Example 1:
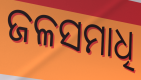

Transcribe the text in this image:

ଜଳସମାଧି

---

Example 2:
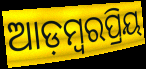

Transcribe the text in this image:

ଆଡ଼ମ୍ବରପ୍ରିୟ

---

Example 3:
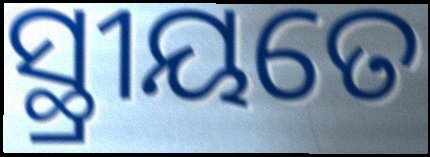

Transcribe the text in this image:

ସ୍ଥ୍ରୀୟତେ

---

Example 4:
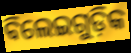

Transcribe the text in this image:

ବିଲେଇଗୁଡ଼ିକ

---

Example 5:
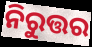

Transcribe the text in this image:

ନିରୁତ୍ତର